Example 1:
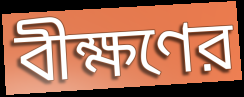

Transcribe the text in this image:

বীক্ষণের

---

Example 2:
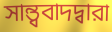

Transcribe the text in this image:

সান্ত্ববাদদ্বারা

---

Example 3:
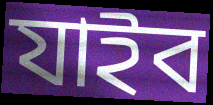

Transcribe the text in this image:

যাইব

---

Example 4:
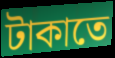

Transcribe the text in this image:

টাকাতে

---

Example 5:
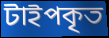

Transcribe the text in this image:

টাইপকৃত